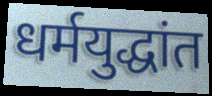
धर्मयुद्धांत